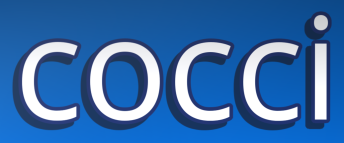
cocci